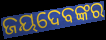
ଜୟଦେବଙ୍କର